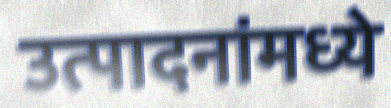
उत्पादनांमध्ये